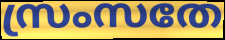
സ്രംസതേ